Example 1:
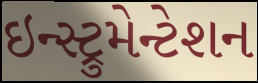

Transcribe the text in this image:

ઇન્સ્ટ્રુમેન્ટેશન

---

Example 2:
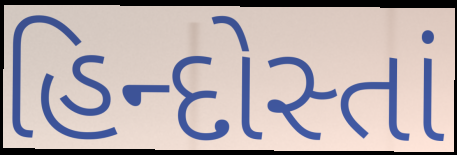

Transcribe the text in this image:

હિન્દોસ્તાં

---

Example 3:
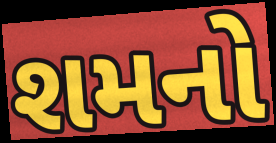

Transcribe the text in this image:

શમનો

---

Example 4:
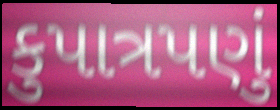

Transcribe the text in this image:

કુપાત્રપણું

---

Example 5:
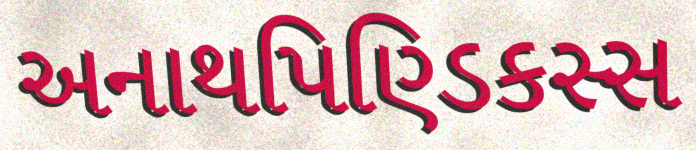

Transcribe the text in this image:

અનાથપિણ્ડિકસ્સ